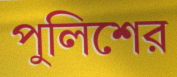
পুলিশের